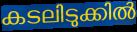
കടലിടുക്കിൽ